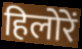
हिलोरें